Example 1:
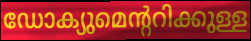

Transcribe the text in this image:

ഡോക്യുമെന്ററിക്കുള്ള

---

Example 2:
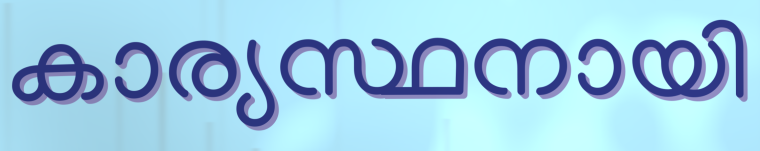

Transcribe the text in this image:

കാര്യസ്ഥനായി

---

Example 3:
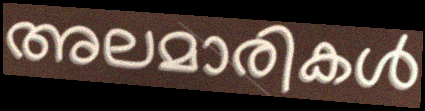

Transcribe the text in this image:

അലമാരികൾ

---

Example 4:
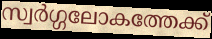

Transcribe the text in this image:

സ്വർഗ്ഗലോകത്തേക്ക്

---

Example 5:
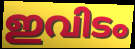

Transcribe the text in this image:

ഇവിടം